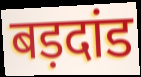
बड़दांड